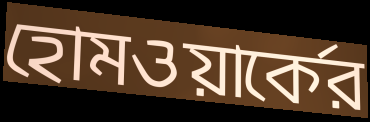
হোমওয়ার্কের